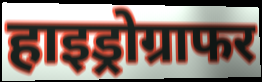
हाइड्रोग्राफर